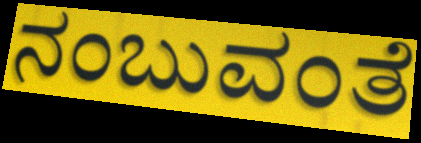
ನಂಬುವಂತೆ